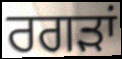
ਰਗੜਾਂ